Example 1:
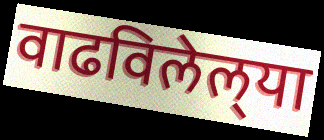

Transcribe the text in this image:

वाढविलेल्या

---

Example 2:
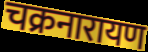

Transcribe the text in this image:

चक्रनारायण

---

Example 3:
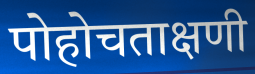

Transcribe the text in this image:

पोहोचताक्षणी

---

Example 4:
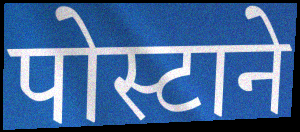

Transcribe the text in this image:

पोस्टाने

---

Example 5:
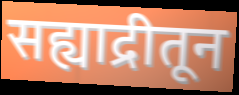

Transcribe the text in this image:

सह्याद्रीतून